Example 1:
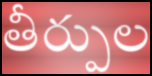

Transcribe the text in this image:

తీర్పుల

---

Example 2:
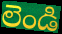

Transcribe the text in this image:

లెండి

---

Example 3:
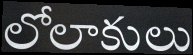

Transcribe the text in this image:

లోలాకులు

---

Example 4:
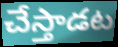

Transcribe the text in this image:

చేస్తాడట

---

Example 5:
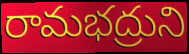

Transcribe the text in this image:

రామభద్రుని